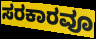
ಸರಕಾರವೂ